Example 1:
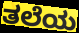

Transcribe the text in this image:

ತಲೆಯ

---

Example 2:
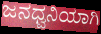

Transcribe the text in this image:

ಜನಧ್ವನಿಯಾಗಿ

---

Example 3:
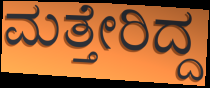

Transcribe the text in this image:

ಮತ್ತೇರಿದ್ದ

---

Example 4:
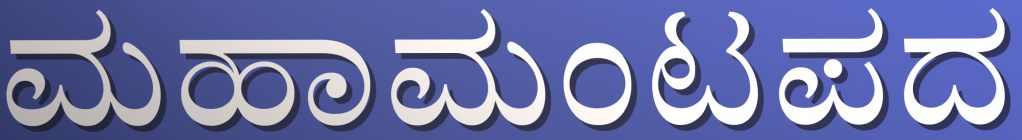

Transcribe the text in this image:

ಮಹಾಮಂಟಪದ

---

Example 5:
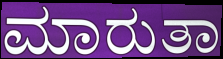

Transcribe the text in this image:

ಮಾರುತಾ